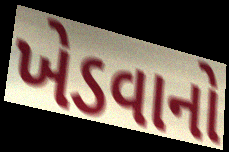
ખેડવાનો